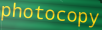
photocopy